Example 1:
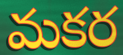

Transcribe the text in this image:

మకర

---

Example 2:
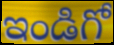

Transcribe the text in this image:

ఇండిగో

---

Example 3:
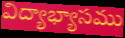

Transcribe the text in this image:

విద్యాభ్యాసము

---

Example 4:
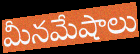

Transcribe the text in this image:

మీనమేషాలు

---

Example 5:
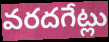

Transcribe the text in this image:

వరదగేట్లు